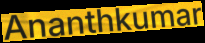
Ananthkumar